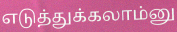
எடுத்துக்கலாம்னு